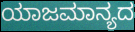
ಯಾಜಮಾನ್ಯದ